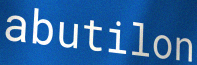
abutilon